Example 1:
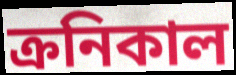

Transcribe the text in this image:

ক্রনিকাল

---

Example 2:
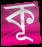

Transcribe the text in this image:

কূ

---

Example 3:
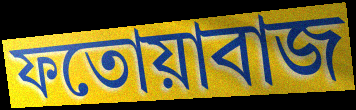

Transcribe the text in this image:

ফতোয়াবাজ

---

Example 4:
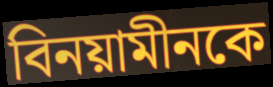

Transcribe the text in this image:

বিনয়ামীনকে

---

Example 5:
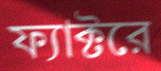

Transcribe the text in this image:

ফ্যাক্টরে